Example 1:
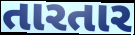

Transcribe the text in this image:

તારતાર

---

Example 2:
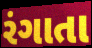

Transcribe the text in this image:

રંગાતા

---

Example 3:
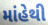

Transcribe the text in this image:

માંહેથી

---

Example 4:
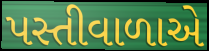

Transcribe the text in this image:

પસ્તીવાળાએ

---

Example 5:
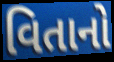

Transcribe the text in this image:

વિતાનો